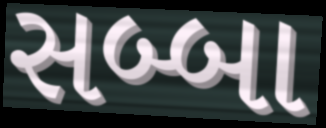
સબ્બા